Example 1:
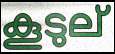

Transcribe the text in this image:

കൂടുല്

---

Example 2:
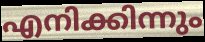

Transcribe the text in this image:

എനിക്കിന്നും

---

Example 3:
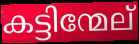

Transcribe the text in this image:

കട്ടിന്മേല്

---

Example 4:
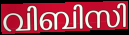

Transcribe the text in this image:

വിബിസി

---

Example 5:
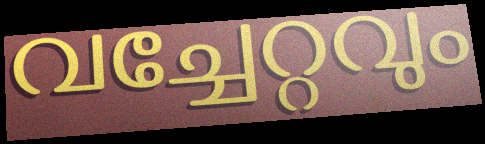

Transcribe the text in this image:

വച്ചേറ്റവും